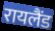
रायलैंड